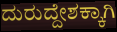
ದುರುದ್ದೇಶಕ್ಕಾಗಿ